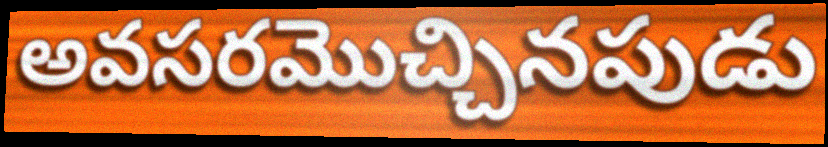
అవసరమొచ్చినపుడు